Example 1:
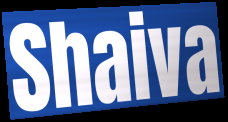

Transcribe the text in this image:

Shaiva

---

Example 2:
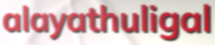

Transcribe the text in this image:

alayathuligal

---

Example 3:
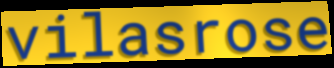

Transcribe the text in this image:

vilasrose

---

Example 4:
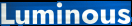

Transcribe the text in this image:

Luminous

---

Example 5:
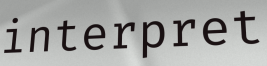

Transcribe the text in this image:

interpret